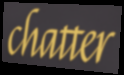
chatter